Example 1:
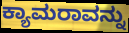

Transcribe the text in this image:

ಕ್ಯಾಮರಾವನ್ನು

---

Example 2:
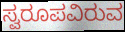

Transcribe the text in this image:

ಸ್ವರೂಪವಿರುವ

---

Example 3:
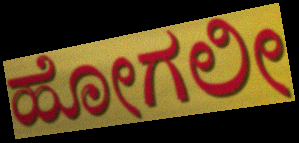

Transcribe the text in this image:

ಹೋಗಲೀ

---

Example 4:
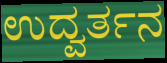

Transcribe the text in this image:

ಉದ್ವರ್ತನ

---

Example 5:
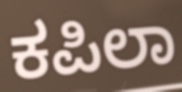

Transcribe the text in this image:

ಕಪಿಲಾ